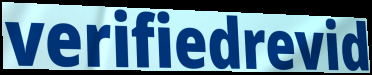
verifiedrevid